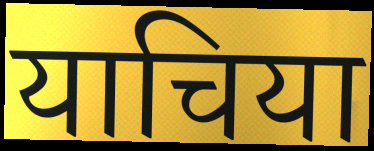
याचिया